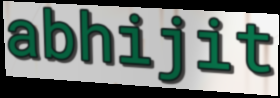
abhijit